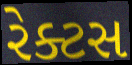
રેક્ટસ